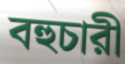
বহুচারী